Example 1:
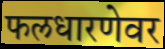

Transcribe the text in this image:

फलधारणेवर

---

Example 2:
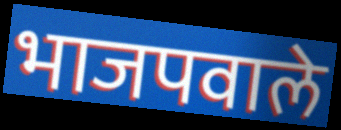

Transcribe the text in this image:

भाजपवाले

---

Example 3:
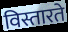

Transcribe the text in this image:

विस्तारते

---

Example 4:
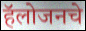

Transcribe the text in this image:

हॅलोजनचे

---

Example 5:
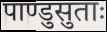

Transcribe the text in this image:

पाण्डुसुताः